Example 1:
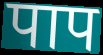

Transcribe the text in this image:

पाप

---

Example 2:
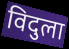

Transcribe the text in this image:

विदुला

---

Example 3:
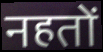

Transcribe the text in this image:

नहतों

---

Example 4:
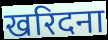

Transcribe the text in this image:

खरिदना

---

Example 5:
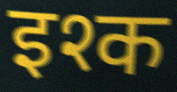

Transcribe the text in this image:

इश्क